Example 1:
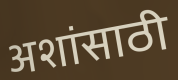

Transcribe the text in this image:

अशांसाठी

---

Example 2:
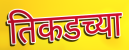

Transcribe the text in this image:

तिकडच्या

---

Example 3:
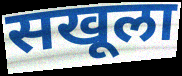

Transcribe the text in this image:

सखूला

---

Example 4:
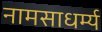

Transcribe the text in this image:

नामसाधर्म्य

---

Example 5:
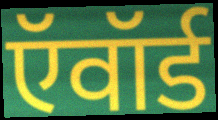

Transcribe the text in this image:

ऍवॉर्ड